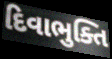
દિવાભુક્તિ